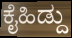
ಕೈಹಿಡ್ದು